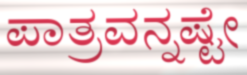
ಪಾತ್ರವನ್ನಷ್ಟೇ